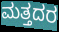
ಮತ್ತದರ